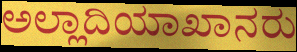
ಅಲ್ಲಾದಿಯಾಖಾನರು